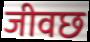
जीवछ